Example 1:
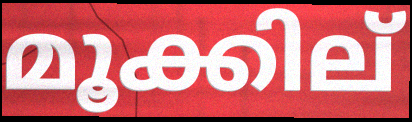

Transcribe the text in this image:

മൂക്കില്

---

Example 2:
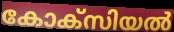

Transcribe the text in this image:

കോക്സിയൽ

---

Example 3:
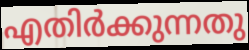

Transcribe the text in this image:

എതിർക്കുന്നതു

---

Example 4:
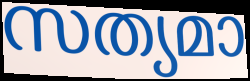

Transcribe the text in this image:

സത്യമാ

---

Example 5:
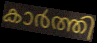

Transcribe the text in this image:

കാർത്തി